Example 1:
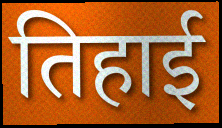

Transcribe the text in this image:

तिहाई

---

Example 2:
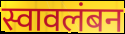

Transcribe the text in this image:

स्वावलंबन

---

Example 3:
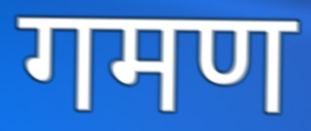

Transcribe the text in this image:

गमण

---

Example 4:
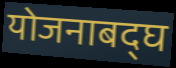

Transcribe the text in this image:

योजनाबद्घ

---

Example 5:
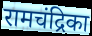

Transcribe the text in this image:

रामचंद्रिका